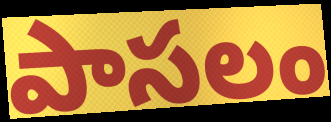
పాసలం